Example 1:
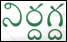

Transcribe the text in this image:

నిర్దగ్ద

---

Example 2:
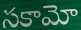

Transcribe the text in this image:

సకామో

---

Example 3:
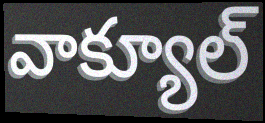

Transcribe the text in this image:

వాక్యూల్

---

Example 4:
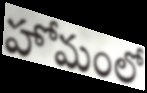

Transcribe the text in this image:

హోమంలో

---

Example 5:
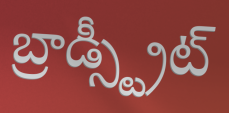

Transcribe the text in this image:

బ్రాడ్స్ట్రీట్